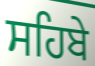
ਸਹਿਬੇ